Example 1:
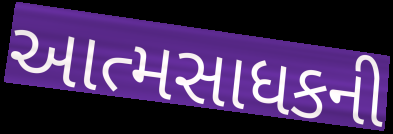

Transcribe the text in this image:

આત્મસાધકની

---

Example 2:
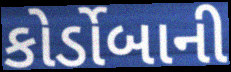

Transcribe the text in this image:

કોર્ડોબાની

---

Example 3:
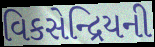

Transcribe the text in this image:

વિકસેન્દ્રિયની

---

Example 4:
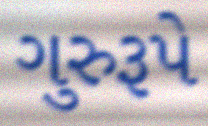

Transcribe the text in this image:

ગુરુરૂપે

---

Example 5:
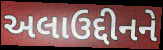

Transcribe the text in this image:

અલાઉદ્દીનને